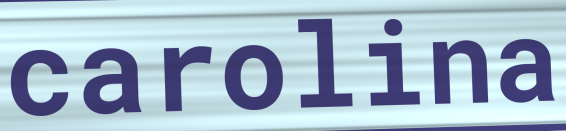
carolina